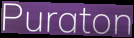
Puraton